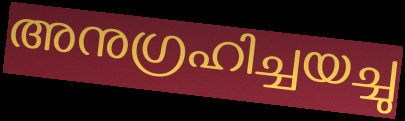
അനുഗ്രഹിച്ചയച്ചു